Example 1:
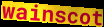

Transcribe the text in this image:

wainscot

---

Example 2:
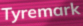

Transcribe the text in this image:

Tyremark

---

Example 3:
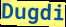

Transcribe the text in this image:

Dugdi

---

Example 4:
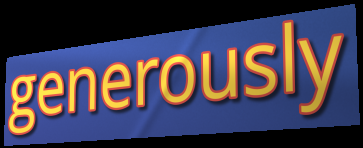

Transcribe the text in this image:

generously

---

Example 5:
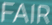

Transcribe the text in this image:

FAIR